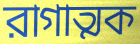
রাগাত্মক